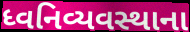
ધ્વનિવ્યવસ્થાના